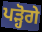
ਪੜ੍ਹੋਗੇ